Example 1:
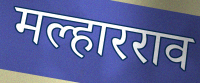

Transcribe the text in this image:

मल्हारराव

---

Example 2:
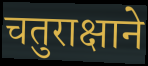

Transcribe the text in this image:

चतुराक्षाने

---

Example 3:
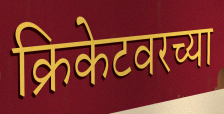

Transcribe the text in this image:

क्रिकेटवरच्या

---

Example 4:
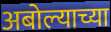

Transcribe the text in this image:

अबोल्याच्या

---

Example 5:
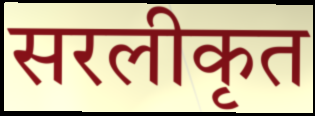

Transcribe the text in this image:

सरलीकृत